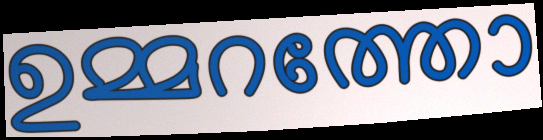
ഉമ്മറത്തോ